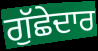
ਗੁੱਛੇਦਾਰ